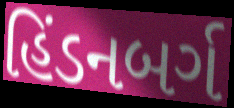
હિંડનબર્ગ